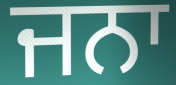
ਜਨਾ